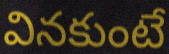
వినకుంటే